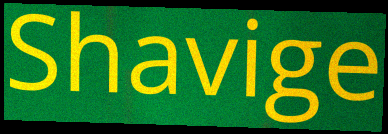
Shavige